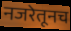
नजरेतूनच